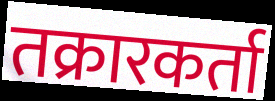
तक्रारकर्ता